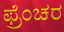
ಫ್ರೆಂಚರ